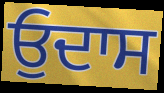
ਓੁਦਾਸ